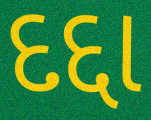
દદ્દા